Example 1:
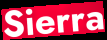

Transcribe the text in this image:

Sierra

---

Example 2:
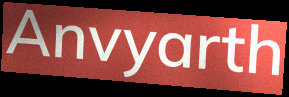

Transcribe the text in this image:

Anvyarth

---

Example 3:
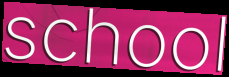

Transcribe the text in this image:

school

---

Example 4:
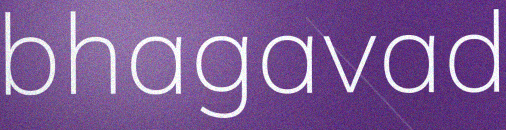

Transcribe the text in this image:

bhagavad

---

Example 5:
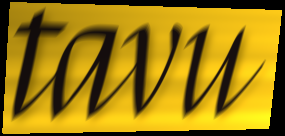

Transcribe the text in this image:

tavu